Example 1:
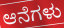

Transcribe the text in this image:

ಆನೆಗಳು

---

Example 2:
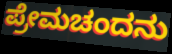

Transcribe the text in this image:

ಪ್ರೇಮಚಂದನು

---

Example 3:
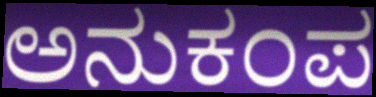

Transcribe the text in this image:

ಅನುಕಂಪ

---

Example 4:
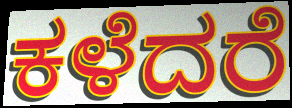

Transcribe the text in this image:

ಕಳೆದರೆ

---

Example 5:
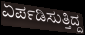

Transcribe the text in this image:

ಏರ್ಪಡಿಸುತ್ತಿದ್ದ